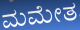
ಮಮೇತ